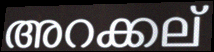
അറക്കല്